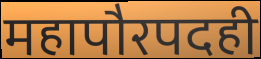
महापौरपदही